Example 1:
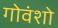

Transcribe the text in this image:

गोवंशो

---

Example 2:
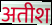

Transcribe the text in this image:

अतीश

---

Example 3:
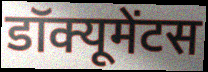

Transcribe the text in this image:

डॉक्यूमेंटस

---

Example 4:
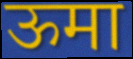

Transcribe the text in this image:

ऊमा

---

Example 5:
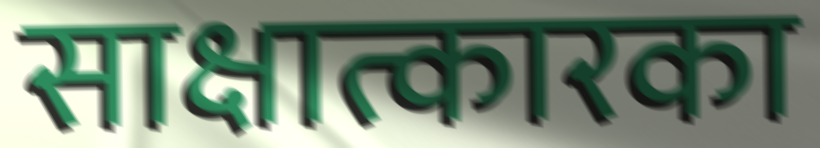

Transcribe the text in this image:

साक्षात्कारका